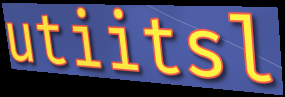
utiitsl